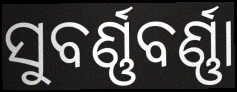
ସୁବର୍ଣ୍ଣବର୍ଣ୍ଣା